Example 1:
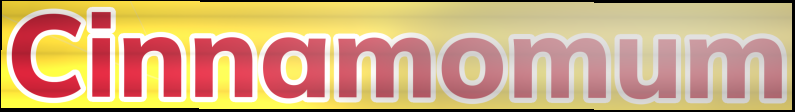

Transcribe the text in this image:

Cinnamomum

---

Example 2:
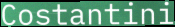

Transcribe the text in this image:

Costantini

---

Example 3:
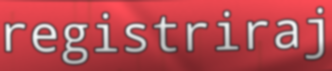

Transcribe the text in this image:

registriraj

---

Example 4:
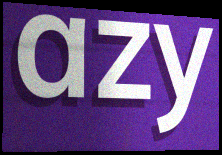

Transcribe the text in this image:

azy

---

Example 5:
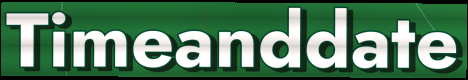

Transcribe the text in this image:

Timeanddate